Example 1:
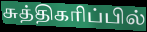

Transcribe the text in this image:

சுத்திகரிப்பில்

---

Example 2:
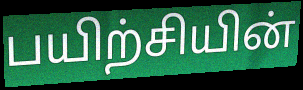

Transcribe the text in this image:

பயிற்சியின்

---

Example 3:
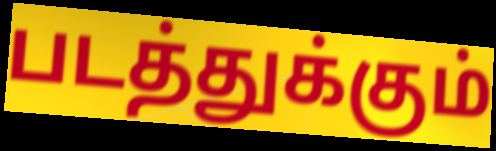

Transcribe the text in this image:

படத்துக்கும்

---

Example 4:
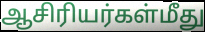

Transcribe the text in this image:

ஆசிரியர்கள்மீது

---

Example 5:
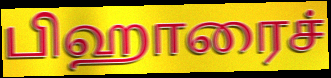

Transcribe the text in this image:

பிஹாரைச்